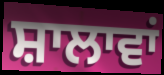
ਸ਼ਾਲਾਵਾਂ